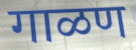
गाळण